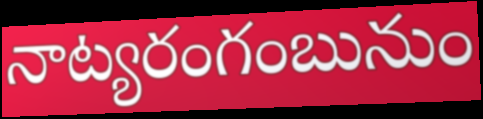
నాట్యరంగంబునుం